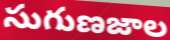
సుగుణజాల